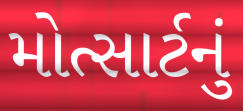
મોત્સાર્ટનું